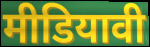
मीडियावी